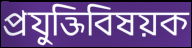
প্রযুক্তিবিষয়ক